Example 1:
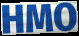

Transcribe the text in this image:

HMO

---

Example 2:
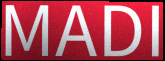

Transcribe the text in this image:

MADI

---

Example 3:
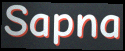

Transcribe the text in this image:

Sapna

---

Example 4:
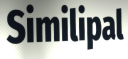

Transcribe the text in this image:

Similipal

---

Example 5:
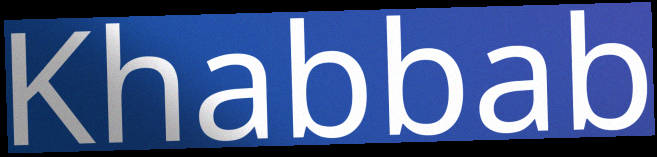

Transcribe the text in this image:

Khabbab